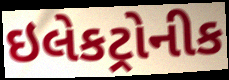
ઇલેકટ્રોનીક